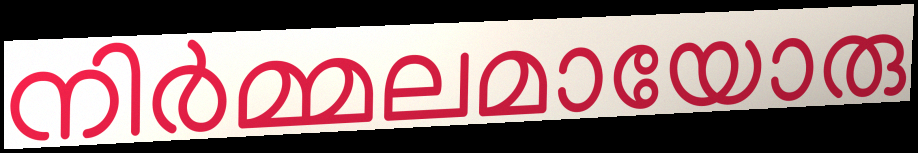
നിർമ്മലമായോരു